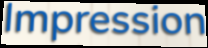
Impression